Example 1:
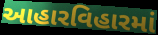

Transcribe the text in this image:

આહારવિહારમાં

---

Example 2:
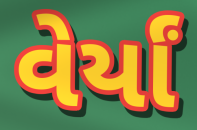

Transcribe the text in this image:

વેર્યાં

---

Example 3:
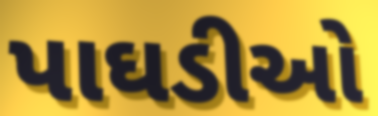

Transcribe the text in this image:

પાઘડીઓ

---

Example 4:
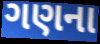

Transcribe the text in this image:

ગણના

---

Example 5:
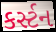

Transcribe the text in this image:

કર્સ્ટન